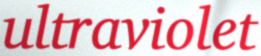
ultraviolet